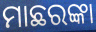
ମାଛରଙ୍କା